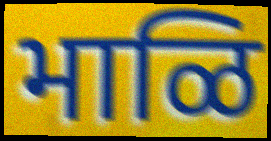
भाळि